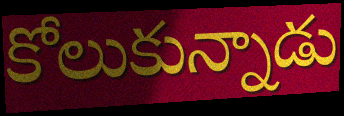
కోలుకున్నాడు